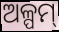
ଅଳ୍ପମ୍